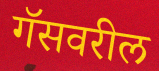
गॅसवरील